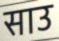
साउ